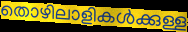
തൊഴിലാളികൾക്കുള്ള